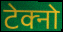
टेक्‍नो